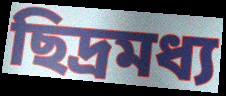
ছিদ্রমধ্য